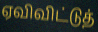
ஏவிவிட்டுத்